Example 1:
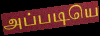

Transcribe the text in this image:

அப்படியெ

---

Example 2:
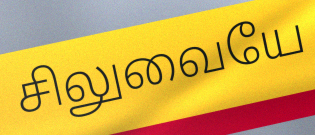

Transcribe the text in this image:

சிலுவையே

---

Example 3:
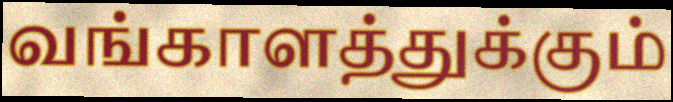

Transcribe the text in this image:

வங்காளத்துக்கும்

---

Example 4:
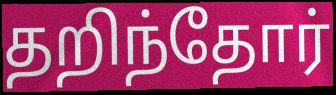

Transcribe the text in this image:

தறிந்தோர்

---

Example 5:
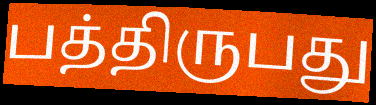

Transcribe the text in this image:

பத்திருபது